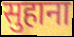
सुहाना